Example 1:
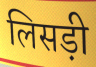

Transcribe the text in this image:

लिसड़ी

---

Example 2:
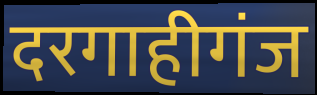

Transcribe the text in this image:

दरगाहीगंज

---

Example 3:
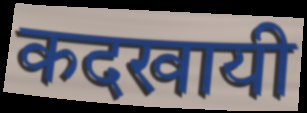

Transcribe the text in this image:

कदखायी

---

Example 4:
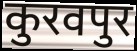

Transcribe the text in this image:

कुरवपुर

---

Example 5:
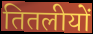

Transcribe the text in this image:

तितलीयों